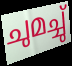
ചുമച്ചു്